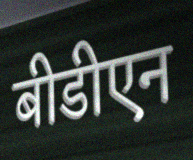
बीडीएन